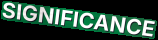
SIGNIFICANCE